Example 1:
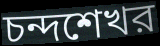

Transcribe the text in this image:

চন্দশেখর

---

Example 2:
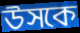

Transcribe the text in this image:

উসকে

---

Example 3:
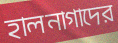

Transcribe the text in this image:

হালনাগাদের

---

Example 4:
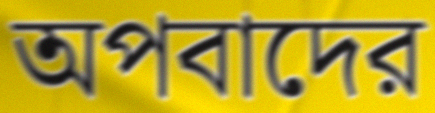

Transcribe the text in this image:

অপবাদের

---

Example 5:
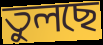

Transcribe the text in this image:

তুলছে